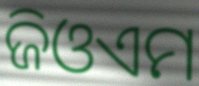
ଜିଓଏମ